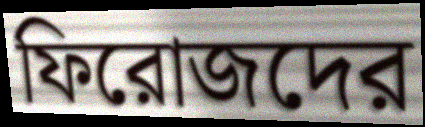
ফিরোজদের